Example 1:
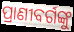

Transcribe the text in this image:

ପ୍ରାଣୀବର୍ଗଙ୍କୁ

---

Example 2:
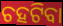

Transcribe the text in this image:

ଚହଟିବା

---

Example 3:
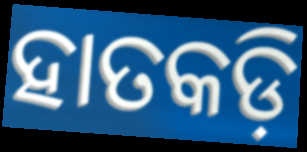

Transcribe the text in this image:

ହାତକଡ଼ି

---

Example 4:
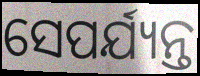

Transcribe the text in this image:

ସେପର୍ଯ୍ୟନ୍ତ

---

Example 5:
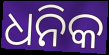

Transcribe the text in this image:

ଧନିକ